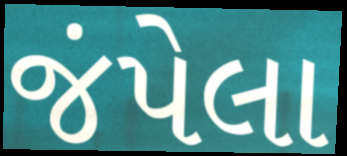
જંપેલા